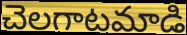
చెలగాటమాడి